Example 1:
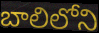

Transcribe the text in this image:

బాలిలోని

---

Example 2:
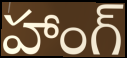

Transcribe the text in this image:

హాంగ్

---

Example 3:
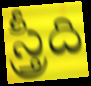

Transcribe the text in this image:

స్త్రీది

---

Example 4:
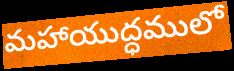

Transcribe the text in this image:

మహాయుద్ధములో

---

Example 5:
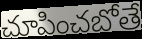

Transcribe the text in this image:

చూపించబోతే